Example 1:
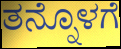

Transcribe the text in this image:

ತನ್ನೊಳಗೆ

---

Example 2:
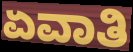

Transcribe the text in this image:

ಏವಾತಿ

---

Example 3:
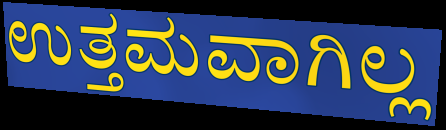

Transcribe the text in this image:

ಉತ್ತಮವಾಗಿಲ್ಲ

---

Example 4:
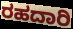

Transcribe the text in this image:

ರಹದಾರಿ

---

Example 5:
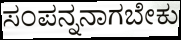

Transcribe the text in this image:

ಸಂಪನ್ನನಾಗಬೇಕು